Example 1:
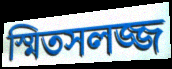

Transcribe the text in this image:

স্মিতসলজ্জ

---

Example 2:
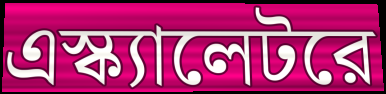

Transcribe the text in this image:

এস্ক্যালেটরে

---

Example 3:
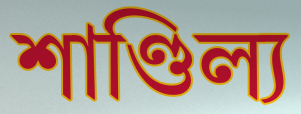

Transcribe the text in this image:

শাণ্ডিল্য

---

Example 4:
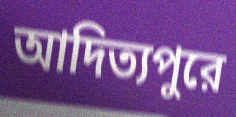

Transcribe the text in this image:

আদিত্যপুরে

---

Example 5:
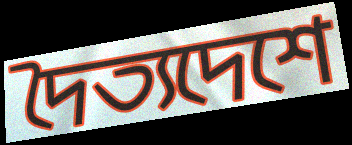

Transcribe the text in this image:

দৈত্যদেশে